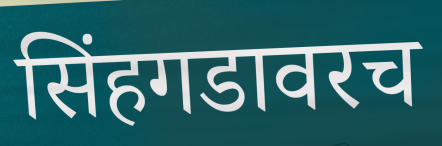
सिंहगडावरच